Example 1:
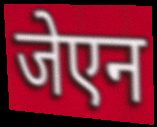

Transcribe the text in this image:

जेएन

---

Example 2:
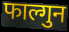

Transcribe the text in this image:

फाल्गुन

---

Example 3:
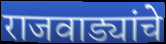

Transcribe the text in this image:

राजवाड्यांचे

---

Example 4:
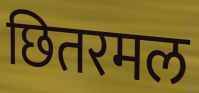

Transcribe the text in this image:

छितरमल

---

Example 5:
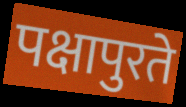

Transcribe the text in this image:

पक्षापुरते